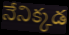
నేనిక్కడ